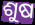
ଶୁଷ